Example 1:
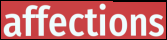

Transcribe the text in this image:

affections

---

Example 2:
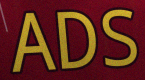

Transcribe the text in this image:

ADS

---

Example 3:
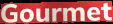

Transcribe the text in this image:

Gourmet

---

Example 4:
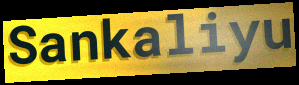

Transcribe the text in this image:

Sankaliyu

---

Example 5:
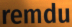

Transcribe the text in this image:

remdu